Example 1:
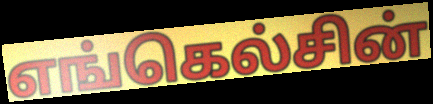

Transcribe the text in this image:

எங்கெல்சின்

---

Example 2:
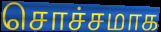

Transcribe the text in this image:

சொச்சமாக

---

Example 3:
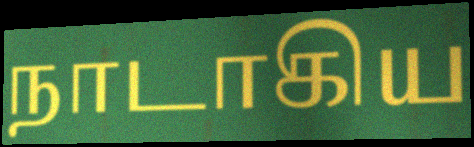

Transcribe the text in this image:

நாடாகிய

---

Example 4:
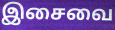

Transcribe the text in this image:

இசைவை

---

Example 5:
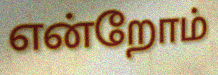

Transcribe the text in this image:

என்றோம்